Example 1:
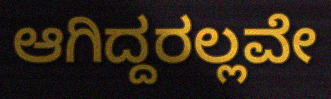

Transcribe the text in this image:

ಆಗಿದ್ದರಲ್ಲವೇ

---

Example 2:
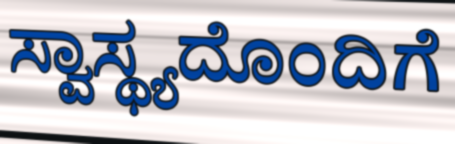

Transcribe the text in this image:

ಸ್ವಾಸ್ಥ್ಯದೊಂದಿಗೆ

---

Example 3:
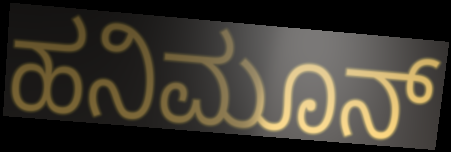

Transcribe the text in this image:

ಹನಿಮೂನ್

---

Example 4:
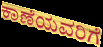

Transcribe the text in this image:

ಕಾಣೆಯವರಿಗೆ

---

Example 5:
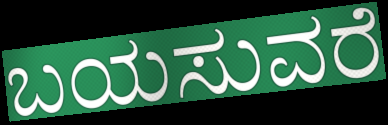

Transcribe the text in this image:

ಬಯಸುವರೆ